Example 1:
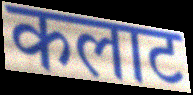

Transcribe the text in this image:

कलाट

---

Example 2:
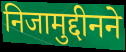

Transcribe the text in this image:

निजामुद्दीनने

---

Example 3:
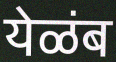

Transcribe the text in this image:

येळंब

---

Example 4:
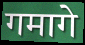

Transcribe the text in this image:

गमागे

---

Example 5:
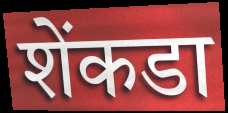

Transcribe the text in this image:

शेंकडा